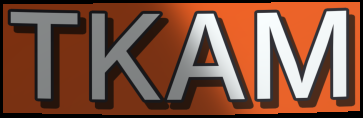
TKAM